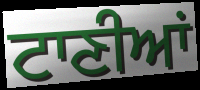
ਟਾਣੀਆਂ